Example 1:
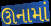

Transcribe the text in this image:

ઊનામાં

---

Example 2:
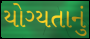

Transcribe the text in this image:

યોગ્યતાનું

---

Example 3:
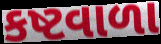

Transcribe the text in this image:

કષ્ટવાળા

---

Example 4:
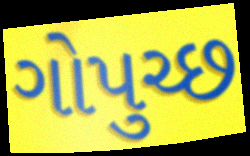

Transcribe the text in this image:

ગોપુચ્છ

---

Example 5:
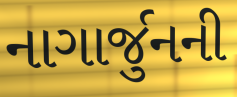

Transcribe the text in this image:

નાગાર્જુનની